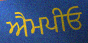
ਐਮਪੀਓ